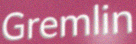
Gremlin